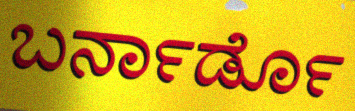
ಬರ್ನಾರ್ಡೊ